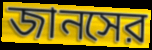
জানসের